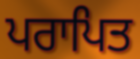
ਪਰਾਪਿਤ